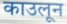
काउलून